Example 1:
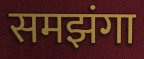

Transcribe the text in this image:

समझंगा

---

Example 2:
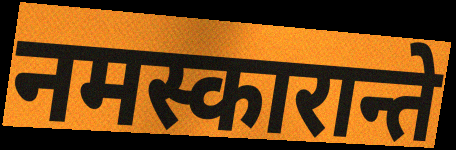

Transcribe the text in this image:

नमस्कारान्ते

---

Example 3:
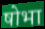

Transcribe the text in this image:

षोभा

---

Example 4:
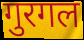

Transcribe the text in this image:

गुरगल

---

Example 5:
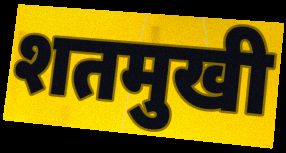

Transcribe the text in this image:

शतमुखी